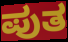
ಪುತ